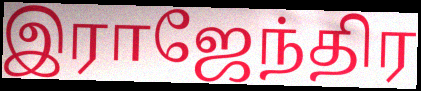
இராஜேந்திர